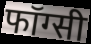
फॉग्सी